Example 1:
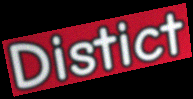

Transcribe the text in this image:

Distict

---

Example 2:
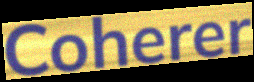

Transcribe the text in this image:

Coherer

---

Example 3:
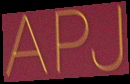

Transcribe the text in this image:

APJ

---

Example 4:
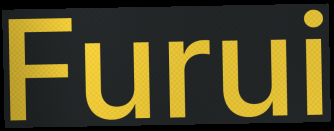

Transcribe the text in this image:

Furui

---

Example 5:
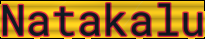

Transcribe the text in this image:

Natakalu